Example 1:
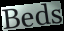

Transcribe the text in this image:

Beds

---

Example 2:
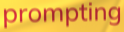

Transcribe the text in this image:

prompting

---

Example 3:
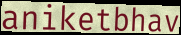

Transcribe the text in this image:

aniketbhav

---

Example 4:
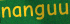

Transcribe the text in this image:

nanguu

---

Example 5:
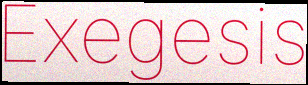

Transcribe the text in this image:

Exegesis